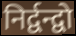
निर्द्वन्द्वो